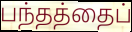
பந்தத்தைப்